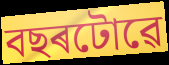
বছৰটোৱে